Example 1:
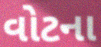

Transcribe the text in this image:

વોટના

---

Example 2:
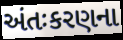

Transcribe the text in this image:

અંતઃકરણના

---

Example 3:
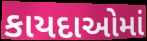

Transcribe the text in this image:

કાયદાઓમાં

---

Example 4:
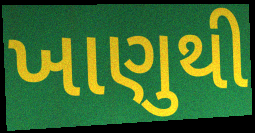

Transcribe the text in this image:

ખાણુથી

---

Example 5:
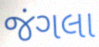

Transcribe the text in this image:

જંગલા